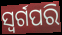
ସ୍ୱର୍ଗପରି